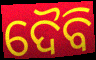
ଦୈବି